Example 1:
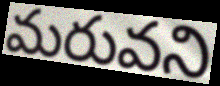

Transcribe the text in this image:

మరువని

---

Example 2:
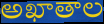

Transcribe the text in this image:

అఖాతాల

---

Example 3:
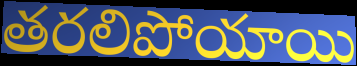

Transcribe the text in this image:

తరలిపోయాయి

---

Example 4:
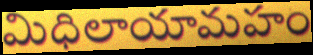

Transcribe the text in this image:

మిధిలాయామహం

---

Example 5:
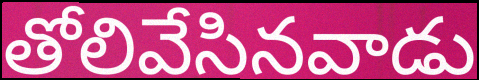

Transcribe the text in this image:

తోలివేసినవాడు